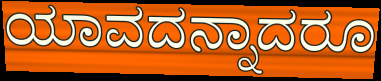
ಯಾವದನ್ನಾದರೂ